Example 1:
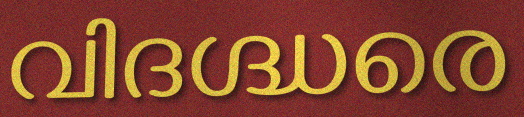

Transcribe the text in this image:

വിദഗ്ദ്ധരെ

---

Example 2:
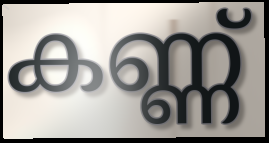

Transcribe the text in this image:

കണ്ണ്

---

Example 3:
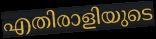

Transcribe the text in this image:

എതിരാളിയുടെ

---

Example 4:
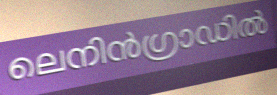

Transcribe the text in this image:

ലെനിൻഗ്രാഡിൽ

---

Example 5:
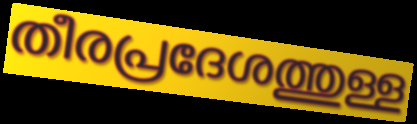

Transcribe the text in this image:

തീരപ്രദേശത്തുള്ള